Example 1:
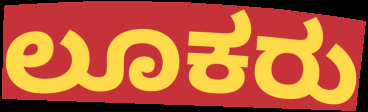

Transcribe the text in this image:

ಲೂಕರು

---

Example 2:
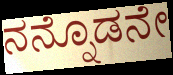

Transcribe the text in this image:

ನನ್ನೊಡನೇ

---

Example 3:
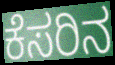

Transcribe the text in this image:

ಕೆಸರಿನ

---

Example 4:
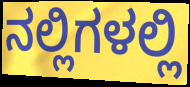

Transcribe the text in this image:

ನಲ್ಲಿಗಳಲ್ಲಿ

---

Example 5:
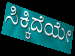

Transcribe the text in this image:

ಸಿಕ್ಕಿದೆಯೇ